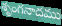
శృంగనాదము